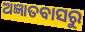
ଅଜ୍ଞାତବାସରୁ